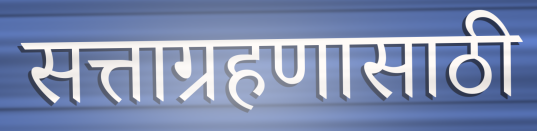
सत्ताग्रहणासाठी